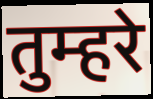
तुम्हरे